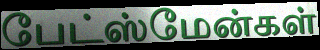
பேட்ஸ்மேன்கள்